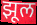
झूल